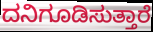
ದನಿಗೂಡಿಸುತ್ತಾರೆ